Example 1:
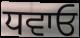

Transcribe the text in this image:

ਧਵਾਓ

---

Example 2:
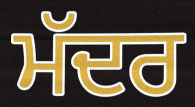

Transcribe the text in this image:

ਮੱਦਰ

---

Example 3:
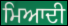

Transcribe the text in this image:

ਮਿਆਦੀ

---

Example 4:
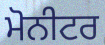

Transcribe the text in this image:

ਮੋਨੀਟਰ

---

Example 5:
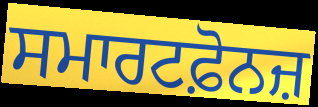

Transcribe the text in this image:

ਸਮਾਰਟਫ਼ੋਨਜ਼